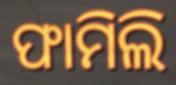
ଫାମିଲି